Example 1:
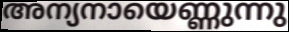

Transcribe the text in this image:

അന്യനായെണ്ണുന്നു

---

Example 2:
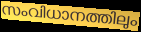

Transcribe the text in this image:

സംവിധാനത്തിലും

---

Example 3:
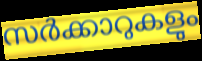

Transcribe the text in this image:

സർക്കാറുകളും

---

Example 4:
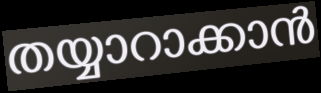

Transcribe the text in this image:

തയ്യാറാക്കാൻ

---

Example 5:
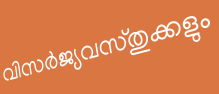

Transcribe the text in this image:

വിസർജ്യവസ്തുക്കളും